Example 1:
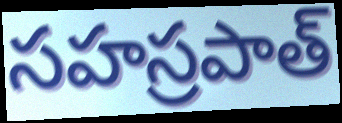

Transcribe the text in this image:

సహస్రపాత్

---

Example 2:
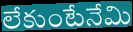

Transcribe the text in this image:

లేకుంటేనేమి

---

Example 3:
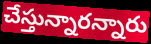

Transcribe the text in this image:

చేస్తున్నారన్నారు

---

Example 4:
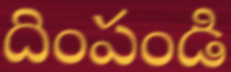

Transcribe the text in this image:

దింపండి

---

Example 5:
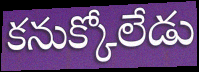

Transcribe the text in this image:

కనుక్కోలేడు